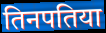
तिनपतिया